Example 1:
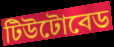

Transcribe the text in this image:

টিউটোবেড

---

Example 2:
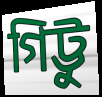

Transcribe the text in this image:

গিট্টু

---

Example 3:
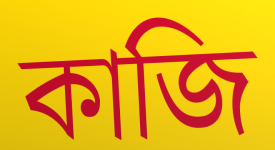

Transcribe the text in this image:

কাজি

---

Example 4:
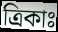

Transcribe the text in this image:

ত্রিকাঃ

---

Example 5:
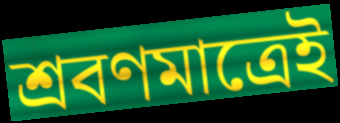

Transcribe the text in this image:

শ্রবণমাত্রেই